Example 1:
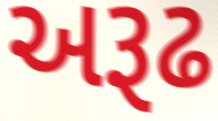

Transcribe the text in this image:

અરૂઢ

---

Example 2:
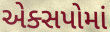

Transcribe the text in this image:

એક્સપોમાં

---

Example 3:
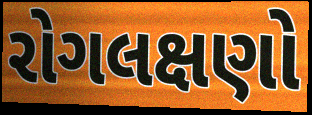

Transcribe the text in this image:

રોગલક્ષણો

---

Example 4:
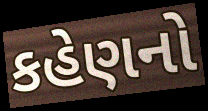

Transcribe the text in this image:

કહેણનો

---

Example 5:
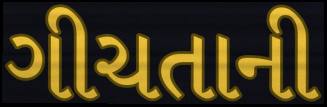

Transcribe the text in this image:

ગીચતાની